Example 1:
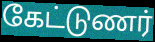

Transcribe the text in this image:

கேட்டுணர்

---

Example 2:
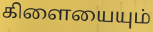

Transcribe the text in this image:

கிளையையும்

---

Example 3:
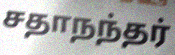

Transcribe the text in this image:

சதாநந்தர்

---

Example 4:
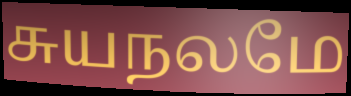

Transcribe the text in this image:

சுயநலமே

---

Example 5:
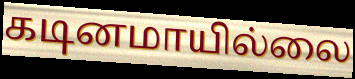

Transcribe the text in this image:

கடினமாயில்லை